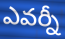
ఎవర్నీ